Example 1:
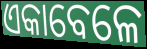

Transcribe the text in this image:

ଏକାବେଳେ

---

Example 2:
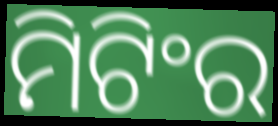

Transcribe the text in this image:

ମିଟିଂର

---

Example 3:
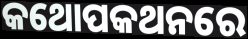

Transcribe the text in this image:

କଥୋପକଥନରେ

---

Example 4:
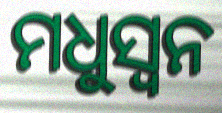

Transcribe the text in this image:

ମଧୁସ୍ୱନ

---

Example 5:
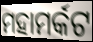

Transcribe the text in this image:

ମହାମର୍କଟ